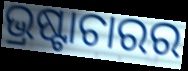
ଭ୍ରଷ୍ଟାଚାରର